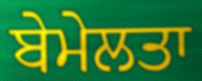
ਬੇਮੇਲਤਾ